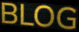
BLOG